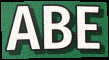
ABE